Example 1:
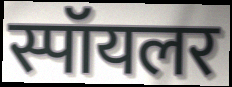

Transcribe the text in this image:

स्पॉयलर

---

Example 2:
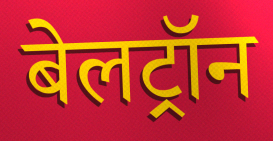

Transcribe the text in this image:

बेलट्रॉन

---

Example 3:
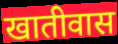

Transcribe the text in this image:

खातीवास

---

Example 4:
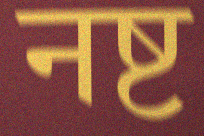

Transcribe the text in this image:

नष्ट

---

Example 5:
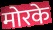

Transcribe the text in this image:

मोरके